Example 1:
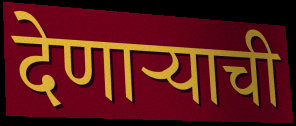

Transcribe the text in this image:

देणाऱ्याची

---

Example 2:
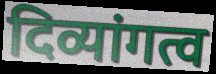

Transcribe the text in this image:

दिव्यांगत्व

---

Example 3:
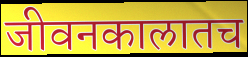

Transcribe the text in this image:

जीवनकालातच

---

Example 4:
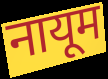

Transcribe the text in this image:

नायूम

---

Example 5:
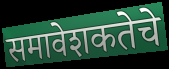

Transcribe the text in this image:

समावेशकतेचे